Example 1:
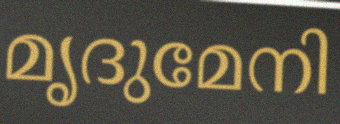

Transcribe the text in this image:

മൃദുമേനി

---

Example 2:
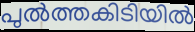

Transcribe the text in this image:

പുൽത്തകിടിയിൽ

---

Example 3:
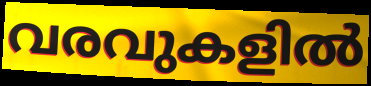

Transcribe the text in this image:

വരവുകളിൽ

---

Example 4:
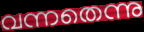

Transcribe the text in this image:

വന്നതെന്നു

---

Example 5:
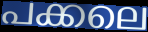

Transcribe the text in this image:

പക്കലെ